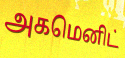
அகமெனிட்